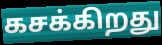
கசக்கிறது